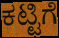
ಕಟ್ಟಿಗೆ